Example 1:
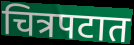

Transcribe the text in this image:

चित्रपटात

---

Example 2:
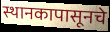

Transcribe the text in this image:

स्थानकापासूनचे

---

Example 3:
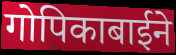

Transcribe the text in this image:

गोपिकाबाईने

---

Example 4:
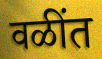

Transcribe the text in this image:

वळींत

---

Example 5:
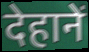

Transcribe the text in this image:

देहानें